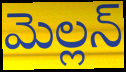
మెల్లన్